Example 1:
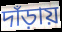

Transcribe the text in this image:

দাঁড়ায়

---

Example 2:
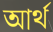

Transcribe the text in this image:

আৰ্থ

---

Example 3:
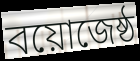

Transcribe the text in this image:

বয়োজেষ্ঠ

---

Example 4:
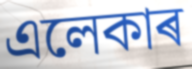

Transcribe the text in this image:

এলেকাৰ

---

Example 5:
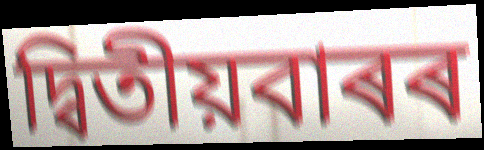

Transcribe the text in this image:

দ্বিতীয়বাৰৰ